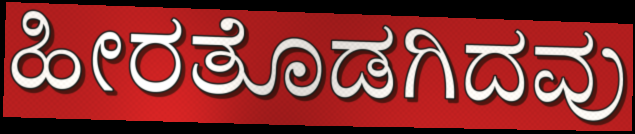
ಹೀರತೊಡಗಿದವು